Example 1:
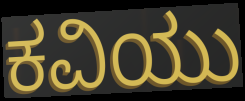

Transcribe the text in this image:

ಕವಿಯು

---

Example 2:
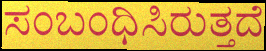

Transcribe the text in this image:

ಸಂಬಂಧಿಸಿರುತ್ತದೆ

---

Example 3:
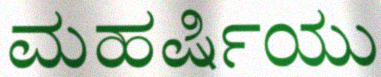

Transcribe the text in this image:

ಮಹರ್ಷಿಯು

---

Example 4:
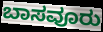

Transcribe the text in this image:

ಬಾಸವೂರು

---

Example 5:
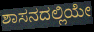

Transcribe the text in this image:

ಶಾಸನದಲ್ಲಿಯೇ